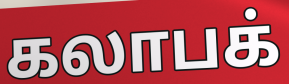
கலாபக்